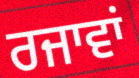
ਰਜਾਵਾਂ